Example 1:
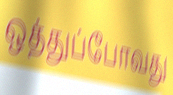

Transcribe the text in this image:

ஒத்துப்போவது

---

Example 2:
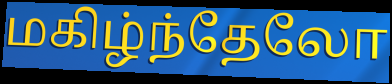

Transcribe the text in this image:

மகிழ்ந்தேலோ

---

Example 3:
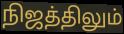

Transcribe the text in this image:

நிஜத்திலும்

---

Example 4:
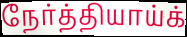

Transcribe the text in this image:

நேர்த்தியாய்க்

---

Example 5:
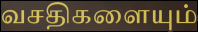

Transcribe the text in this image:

வசதிகளையும்